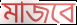
মাজবে